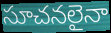
సూచనలైనా